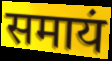
समायं